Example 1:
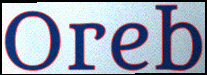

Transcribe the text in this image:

Oreb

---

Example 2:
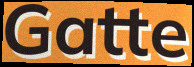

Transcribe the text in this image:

Gatte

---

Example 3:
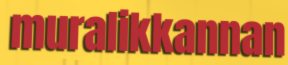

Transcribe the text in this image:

muralikkannan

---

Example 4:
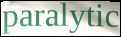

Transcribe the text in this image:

paralytic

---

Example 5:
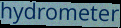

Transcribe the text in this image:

hydrometer